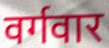
वर्गवार